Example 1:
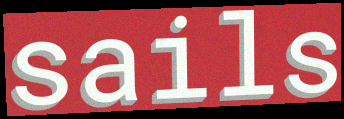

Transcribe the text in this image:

sails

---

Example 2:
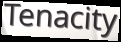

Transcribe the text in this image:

Tenacity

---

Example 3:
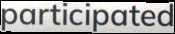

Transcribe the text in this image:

participated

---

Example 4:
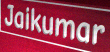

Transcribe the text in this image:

Jaikumar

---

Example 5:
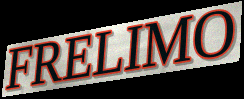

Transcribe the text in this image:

FRELIMO